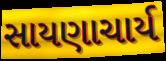
સાયણાચાર્ય